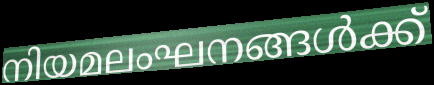
നിയമലംഘനങ്ങൾക്ക്